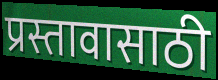
प्रस्तावासाठी